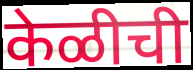
केळीची